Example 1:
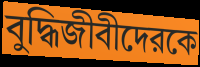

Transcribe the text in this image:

বুদ্ধিজীবীদেরকে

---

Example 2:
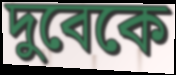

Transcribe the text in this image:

দুবেকে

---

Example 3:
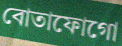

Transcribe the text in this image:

বোতাফোগো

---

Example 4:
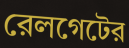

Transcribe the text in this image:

রেলগেটের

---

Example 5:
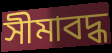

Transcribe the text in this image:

সীমাবদ্ধ